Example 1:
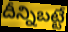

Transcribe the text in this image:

దీన్నిబట్టే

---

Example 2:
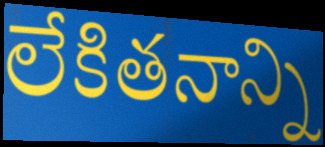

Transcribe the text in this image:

లేకితనాన్ని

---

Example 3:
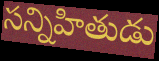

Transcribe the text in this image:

సన్నిహితుడు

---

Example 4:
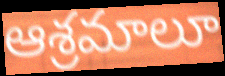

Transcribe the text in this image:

ఆశ్రమాలూ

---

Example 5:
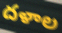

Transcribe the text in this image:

దళాల